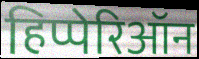
हिप्पेरिऑन